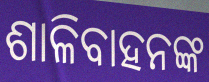
ଶାଳିବାହନଙ୍କ